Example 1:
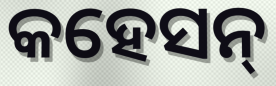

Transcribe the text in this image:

କହେସନ୍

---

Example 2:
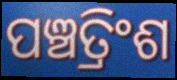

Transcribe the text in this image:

ପଞ୍ଚତ୍ରିଂଶ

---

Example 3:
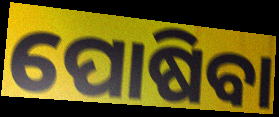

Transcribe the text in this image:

ପୋଷିବା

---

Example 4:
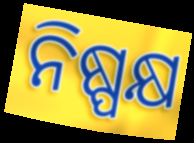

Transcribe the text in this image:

ନିଷ୍ପକ୍ଷ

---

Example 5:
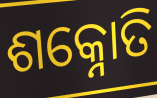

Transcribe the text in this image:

ଶକ୍ନୋତି